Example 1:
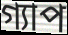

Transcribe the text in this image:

গ্যাপ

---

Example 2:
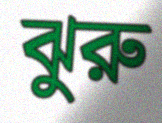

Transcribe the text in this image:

ঝুরু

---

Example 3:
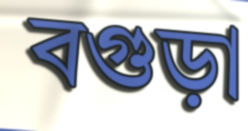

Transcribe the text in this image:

বগুড়া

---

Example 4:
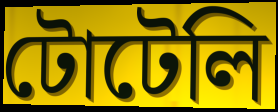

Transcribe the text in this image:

টোটেলি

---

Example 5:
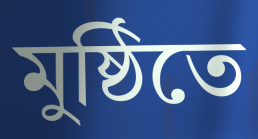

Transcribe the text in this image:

মুষ্ঠিতে